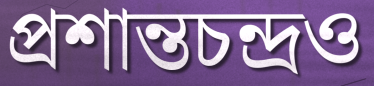
প্রশান্তচন্দ্রও